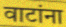
वाटांना